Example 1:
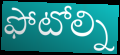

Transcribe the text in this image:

ఫోటోల్ని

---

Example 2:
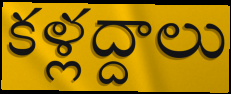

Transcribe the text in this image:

కళ్లద్దాలు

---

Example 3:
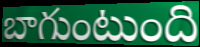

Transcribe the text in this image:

బాగుంటుంది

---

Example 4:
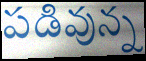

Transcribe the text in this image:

పడివున్న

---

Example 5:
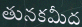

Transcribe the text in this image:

తునకమీద